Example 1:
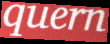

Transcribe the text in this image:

quern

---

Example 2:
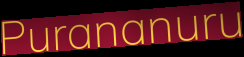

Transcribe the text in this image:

Purananuru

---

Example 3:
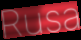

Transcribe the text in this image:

Rusa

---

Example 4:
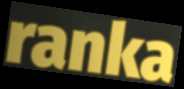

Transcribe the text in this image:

ranka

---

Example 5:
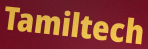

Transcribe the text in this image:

Tamiltech